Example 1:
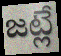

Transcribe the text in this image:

జట్లే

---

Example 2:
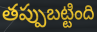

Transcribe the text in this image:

తప్పుబట్టింది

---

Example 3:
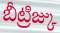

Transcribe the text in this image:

బీట్రిజ్కు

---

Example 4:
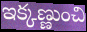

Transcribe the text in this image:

ఇక్కణ్ణుంచి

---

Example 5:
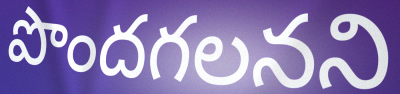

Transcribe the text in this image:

పొందగలనని